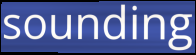
sounding